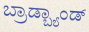
ಬ್ರಾಡ್ಬ್ಯಾಂಡ್